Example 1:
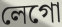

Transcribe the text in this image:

লেগো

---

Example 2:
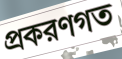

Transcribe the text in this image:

প্রকরণগত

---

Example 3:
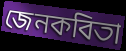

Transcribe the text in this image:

জেনকবিতা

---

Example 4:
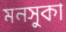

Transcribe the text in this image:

মনসুকা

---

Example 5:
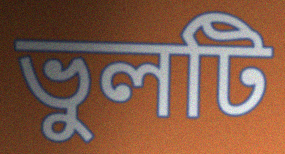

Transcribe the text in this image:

ভুলটি